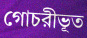
গোচরীভূত